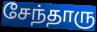
சேந்தாரு